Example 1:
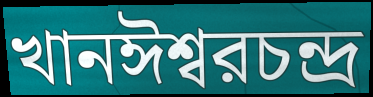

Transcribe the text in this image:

খানঈশ্বরচন্দ্র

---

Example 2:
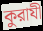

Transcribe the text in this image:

কুরাযী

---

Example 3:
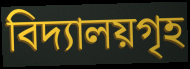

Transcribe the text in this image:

বিদ্যালয়গৃহ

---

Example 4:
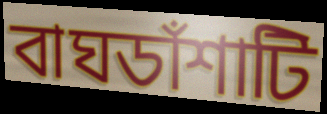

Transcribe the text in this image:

বাঘডাঁশাটি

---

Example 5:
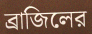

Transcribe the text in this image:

ব্রাজিলের